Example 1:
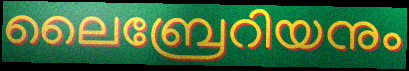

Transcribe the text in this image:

ലൈബ്രേറിയനും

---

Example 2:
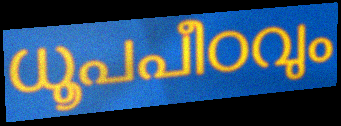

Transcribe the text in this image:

ധൂപപീഠവും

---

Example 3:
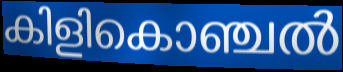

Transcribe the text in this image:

കിളികൊഞ്ചൽ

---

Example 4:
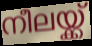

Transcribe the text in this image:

നീലയ്ക്ക്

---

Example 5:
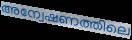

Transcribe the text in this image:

അന്വേഷണത്തിലെ